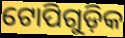
ଟୋପିଗୁଡ଼ିକ